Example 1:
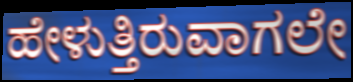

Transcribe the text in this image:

ಹೇಳುತ್ತಿರುವಾಗಲೇ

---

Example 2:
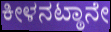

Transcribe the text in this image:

ಕೀಳನಟ್ಠಾನೇ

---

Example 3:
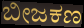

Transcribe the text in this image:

ಬೀಜಕಣ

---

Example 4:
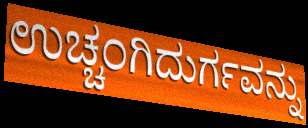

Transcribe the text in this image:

ಉಚ್ಚಂಗಿದುರ್ಗವನ್ನು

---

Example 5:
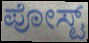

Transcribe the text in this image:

ಪೋಸ್ಟ್